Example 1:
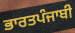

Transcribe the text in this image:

ਭਾਰਤਪੰਜਾਬੀ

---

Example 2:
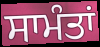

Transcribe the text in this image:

ਸਾਮੰਤਾਂ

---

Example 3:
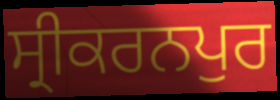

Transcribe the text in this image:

ਸ੍ਰੀਕਰਨਪੁਰ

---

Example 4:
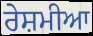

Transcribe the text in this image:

ਰੇਸ਼ਮੀਆ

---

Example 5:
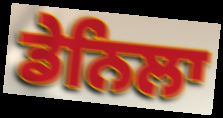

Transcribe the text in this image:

ਡੇਨਿਲਾ